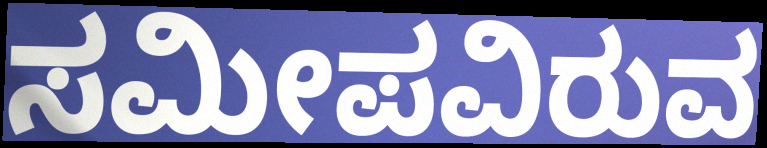
ಸಮೀಪವಿರುವ